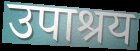
उपाश्रय